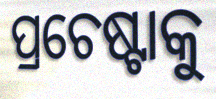
ପ୍ରଚେଷ୍ଟାକୁ